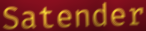
Satender